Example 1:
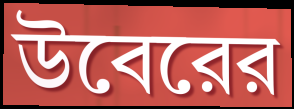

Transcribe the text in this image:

উবেরের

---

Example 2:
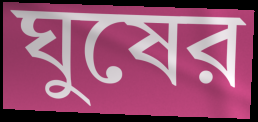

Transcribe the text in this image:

ঘুষের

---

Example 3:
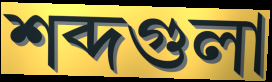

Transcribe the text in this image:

শব্দগুলা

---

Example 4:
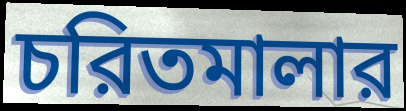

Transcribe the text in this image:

চরিতমালার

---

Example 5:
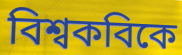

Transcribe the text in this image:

বিশ্বকবিকে